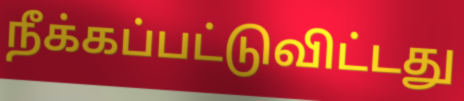
நீக்கப்பட்டுவிட்டது